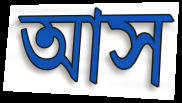
আস